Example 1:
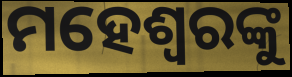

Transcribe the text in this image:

ମହେଶ୍ଵରଙ୍କୁ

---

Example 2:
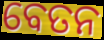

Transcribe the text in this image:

ବେତନ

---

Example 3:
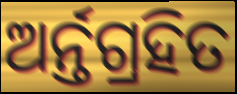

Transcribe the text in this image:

ଅର୍ନ୍ତଗ୍ରହିତ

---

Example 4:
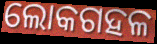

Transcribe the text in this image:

ଲୋକଗହଳ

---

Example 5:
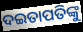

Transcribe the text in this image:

ଦଇତାପତିଙ୍କୁ